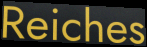
Reiches